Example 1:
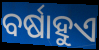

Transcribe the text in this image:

ବର୍ଷାହୁଏ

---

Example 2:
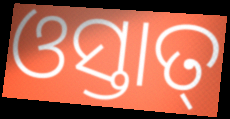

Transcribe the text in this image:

ଓସ୍ତାତ୍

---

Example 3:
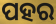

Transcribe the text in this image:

ପହର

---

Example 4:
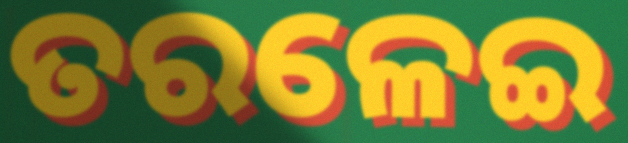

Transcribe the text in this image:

ତରଳେଇ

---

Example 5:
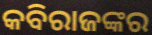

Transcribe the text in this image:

କବିରାଜଙ୍କର